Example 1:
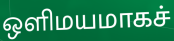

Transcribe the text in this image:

ஒளிமயமாகச்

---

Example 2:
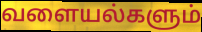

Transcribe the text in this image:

வளையல்களும்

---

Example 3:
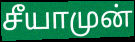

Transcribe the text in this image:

சீயாமுன்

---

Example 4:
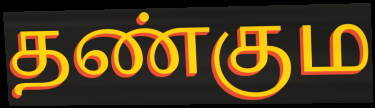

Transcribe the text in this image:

தண்கும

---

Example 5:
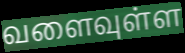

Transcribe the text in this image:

வளைவுள்ள